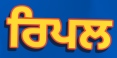
ਰਿਪਲ